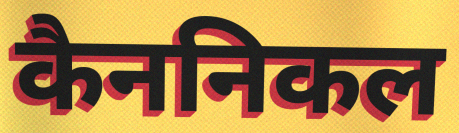
कैननिकल